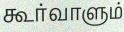
கூர்வாளும்